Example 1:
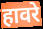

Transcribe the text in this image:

हावरे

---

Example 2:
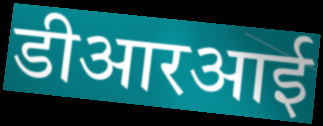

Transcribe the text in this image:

डीआरआई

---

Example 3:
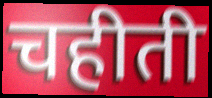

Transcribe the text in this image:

चहीती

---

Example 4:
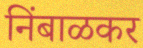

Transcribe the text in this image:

निंबाळकर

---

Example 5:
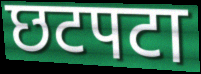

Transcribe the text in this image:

छटपटा